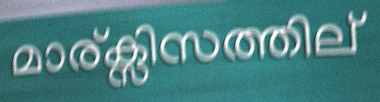
മാര്ക്സിസത്തില്